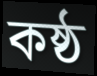
কষ্ঠ